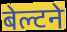
बेल्टने